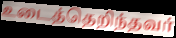
உடைத்தெறிந்தவர்